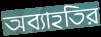
অব্যাহতির